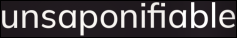
unsaponifiable